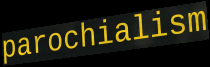
parochialism